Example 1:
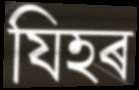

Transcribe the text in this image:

যিহৰ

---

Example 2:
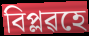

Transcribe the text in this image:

বিপ্লৱহে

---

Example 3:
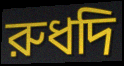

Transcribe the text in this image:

ৰুধদি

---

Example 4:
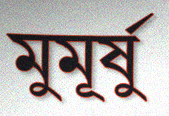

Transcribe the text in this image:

মুমূৰ্ষু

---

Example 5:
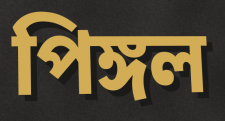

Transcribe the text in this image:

পিঙ্গল